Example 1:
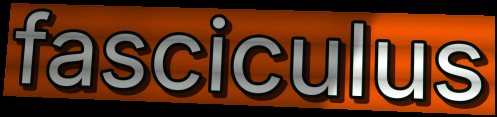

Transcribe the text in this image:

fasciculus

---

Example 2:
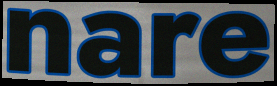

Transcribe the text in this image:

nare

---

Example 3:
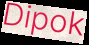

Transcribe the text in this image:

Dipok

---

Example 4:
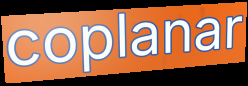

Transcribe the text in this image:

coplanar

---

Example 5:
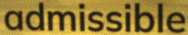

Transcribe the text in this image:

admissible